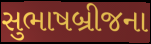
સુભાષબ્રીજના